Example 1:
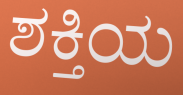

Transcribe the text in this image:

ಶಕ್ತಿಯ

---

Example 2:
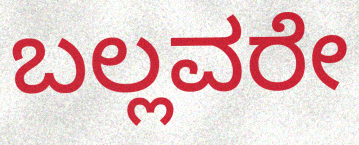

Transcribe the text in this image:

ಬಲ್ಲವರೇ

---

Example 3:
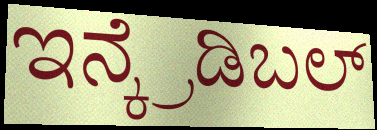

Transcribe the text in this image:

ಇನ್ಕ್ರೆಡಿಬಲ್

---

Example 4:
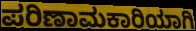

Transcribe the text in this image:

ಪರಿಣಾಮಕಾರಿಯಾಗಿ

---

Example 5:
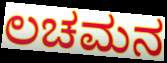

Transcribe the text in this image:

ಲಚಮನ